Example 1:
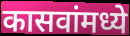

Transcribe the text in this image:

कासवांमध्ये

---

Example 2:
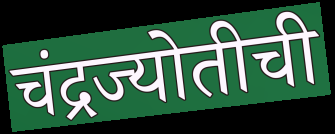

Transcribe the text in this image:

चंद्रज्योतीची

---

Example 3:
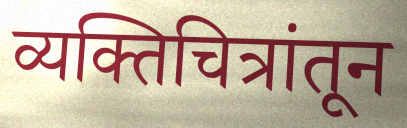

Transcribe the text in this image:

व्यक्तिचित्रांतून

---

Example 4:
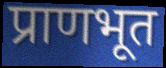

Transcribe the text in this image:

प्राणभूत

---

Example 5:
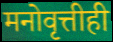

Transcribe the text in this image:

मनोवृत्तीही